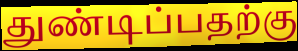
துண்டிப்பதற்கு